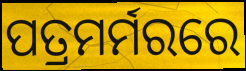
ପତ୍ରମର୍ମରରେ